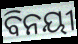
ବିନୟୀ